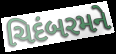
ચિદંબરમને